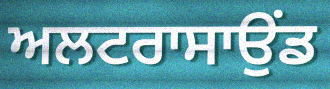
ਅਲਟਰਾਸਾਉਂਡ